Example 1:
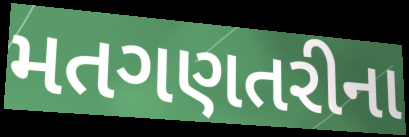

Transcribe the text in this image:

મતગણતરીના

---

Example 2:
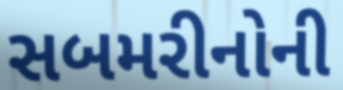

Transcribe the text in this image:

સબમરીનોની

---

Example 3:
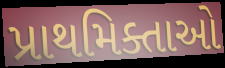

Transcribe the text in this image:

પ્રાથમિક્તાઓ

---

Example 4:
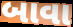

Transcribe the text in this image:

બાવા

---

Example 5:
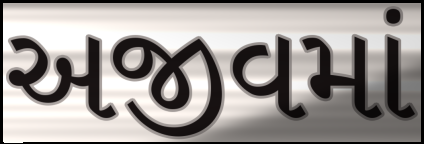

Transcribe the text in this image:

અજીવમાં